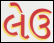
લેઉ